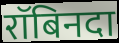
रॉबिनदा